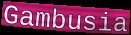
Gambusia